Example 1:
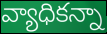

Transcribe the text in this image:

వ్యాధికన్నా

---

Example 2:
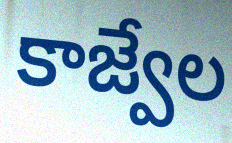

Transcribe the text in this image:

కాజ్వేల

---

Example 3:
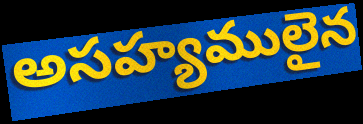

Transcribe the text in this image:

అసహ్యములైన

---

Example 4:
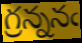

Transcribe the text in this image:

గ్రన్ననఁ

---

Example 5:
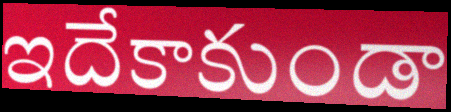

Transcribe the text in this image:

ఇదేకాకుండా